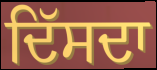
ਦਿੱਸਦਾ